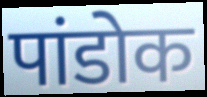
पांडोक